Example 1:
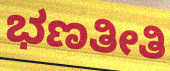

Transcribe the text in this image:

ಭಣತೀತಿ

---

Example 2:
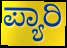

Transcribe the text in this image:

ಪ್ಯಾರಿ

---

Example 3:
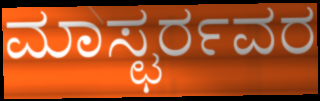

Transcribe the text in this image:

ಮಾಸ್ಟರ್ರವರ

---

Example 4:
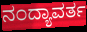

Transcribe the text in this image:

ನಂದ್ಯಾವರ್ತ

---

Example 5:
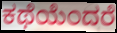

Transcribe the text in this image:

ಕಥೆಯೆಂದರೆ